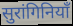
सुरांगिनियाँ